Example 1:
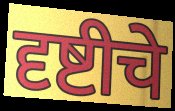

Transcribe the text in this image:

दृष्टीचे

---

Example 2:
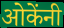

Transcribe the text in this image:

ओकेंनी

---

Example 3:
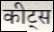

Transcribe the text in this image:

कीट्‌स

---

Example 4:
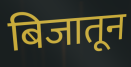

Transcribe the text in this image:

बिजातून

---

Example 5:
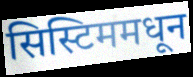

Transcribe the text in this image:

सिस्टिममधून